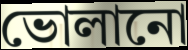
ভোলানো